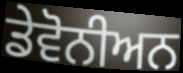
ਡੇਵੋਨੀਅਨ